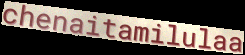
chenaitamilulaa